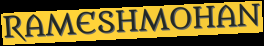
RAMESHMOHAN